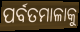
ପର୍ବତମାଳାକୁ